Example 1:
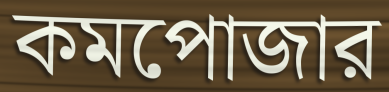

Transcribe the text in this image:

কমপোজার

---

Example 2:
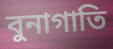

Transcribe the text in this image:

বুনাগাতি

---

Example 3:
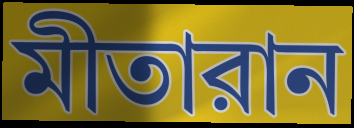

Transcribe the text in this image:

মীতারান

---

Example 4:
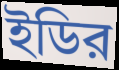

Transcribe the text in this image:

ইডির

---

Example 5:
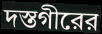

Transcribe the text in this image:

দস্তগীরের